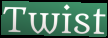
Twist